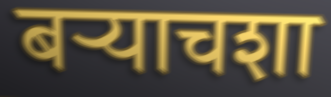
बर्‍याचशा